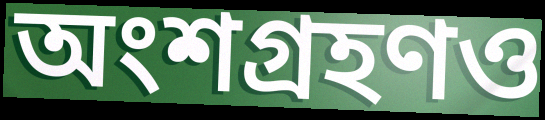
অংশগ্রহণও